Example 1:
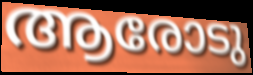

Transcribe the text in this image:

ആരോടു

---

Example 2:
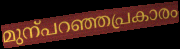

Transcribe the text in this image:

മുന്പറഞ്ഞപ്രകാരം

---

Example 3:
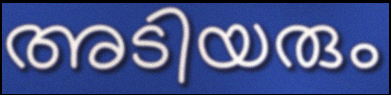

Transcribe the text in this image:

അടിയരും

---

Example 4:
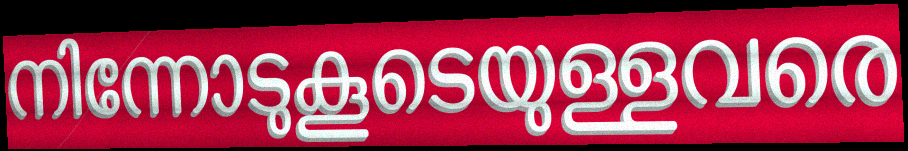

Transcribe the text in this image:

നിന്നോടുകൂടെയുള്ളവരെ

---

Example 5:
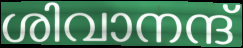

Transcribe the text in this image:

ശിവാനന്ദ്